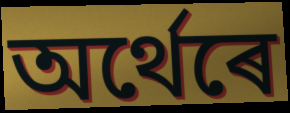
অৰ্থেৰে